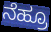
ನೆಹ್ರೂ